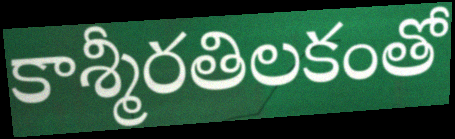
కాశ్మీరతిలకంతో